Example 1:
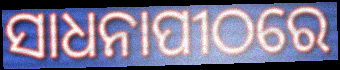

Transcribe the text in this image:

ସାଧନାପୀଠରେ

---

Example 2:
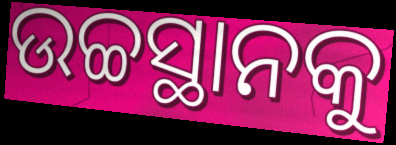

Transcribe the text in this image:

ଉଚ୍ଚସ୍ଥାନକୁ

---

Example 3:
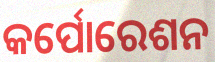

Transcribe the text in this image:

କର୍ପୋରେଶନ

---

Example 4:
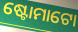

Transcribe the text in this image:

ଷ୍ଟୋମାଟୋ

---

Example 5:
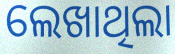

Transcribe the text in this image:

ଲେଖାଥିଲା